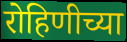
रोहिणीच्या